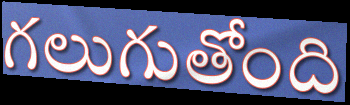
గలుగుతోంది